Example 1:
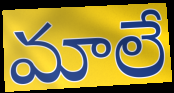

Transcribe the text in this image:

మాలే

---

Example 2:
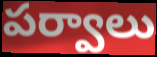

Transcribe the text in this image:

పర్వాలు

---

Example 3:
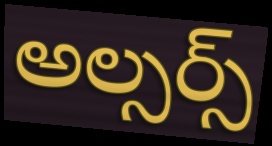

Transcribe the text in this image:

అల్సర్స్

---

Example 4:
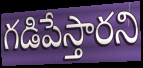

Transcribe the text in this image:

గడిపేస్తారని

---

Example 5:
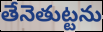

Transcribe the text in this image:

తేనెతుట్టను